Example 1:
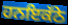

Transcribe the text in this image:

ਹਨਇਕੱਠੇ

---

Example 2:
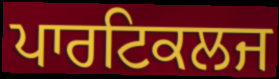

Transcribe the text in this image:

ਪਾਰਟਿਕਲਜ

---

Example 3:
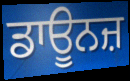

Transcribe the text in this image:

ਡਾਊਨਜ਼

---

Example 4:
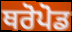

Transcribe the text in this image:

ਥਰੋਪੋਡ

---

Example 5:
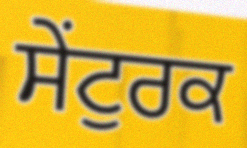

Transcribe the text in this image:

ਸੇਂਟੁਰਕ